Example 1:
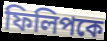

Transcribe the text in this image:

ফিলিপকে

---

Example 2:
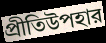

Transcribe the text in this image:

প্রীতিউপহার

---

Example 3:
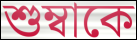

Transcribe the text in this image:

শুম্বাকে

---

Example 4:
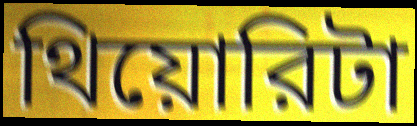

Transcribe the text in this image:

থিয়োরিটা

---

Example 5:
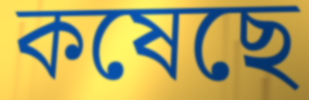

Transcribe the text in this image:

কষেছে